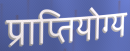
प्राप्तियोग्य